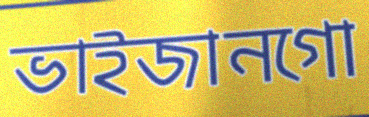
ভাইজানগো